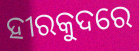
ହୀରକୁଦରେ